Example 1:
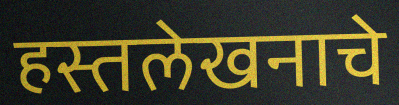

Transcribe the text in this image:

हस्तलेखनाचे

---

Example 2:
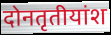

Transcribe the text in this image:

दोनतृतीयांश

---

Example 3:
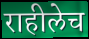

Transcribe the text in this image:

राहीलेच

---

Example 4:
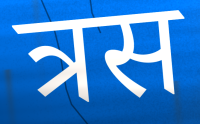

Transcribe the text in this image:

त्रस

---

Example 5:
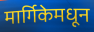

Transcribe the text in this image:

मार्गिकेमधून